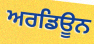
ਅਰਡਿਊਨ